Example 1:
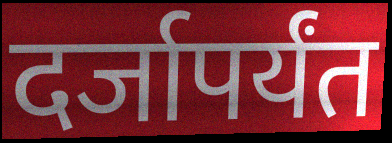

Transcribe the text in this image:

दर्जापर्यंत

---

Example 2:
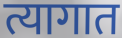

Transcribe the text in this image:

त्यागात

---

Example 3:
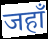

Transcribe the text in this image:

जहाँ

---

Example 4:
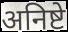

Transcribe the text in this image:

अनिष्टे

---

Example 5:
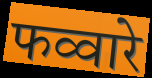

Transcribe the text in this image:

फव्वारे